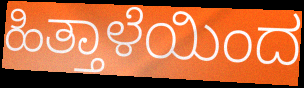
ಹಿತ್ತಾಳೆಯಿಂದ